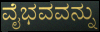
ವೈಭವವನ್ನು